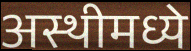
अस्थीमध्ये